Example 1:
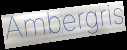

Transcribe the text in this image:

Ambergris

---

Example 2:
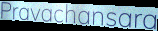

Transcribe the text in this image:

Pravachansara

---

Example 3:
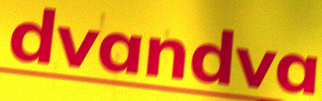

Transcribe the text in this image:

dvandva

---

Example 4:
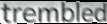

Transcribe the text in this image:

trembled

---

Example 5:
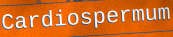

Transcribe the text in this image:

Cardiospermum